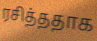
ரசித்ததாக